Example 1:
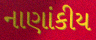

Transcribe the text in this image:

નાણાંકીય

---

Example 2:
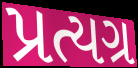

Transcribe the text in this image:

પ્રત્યગ્ર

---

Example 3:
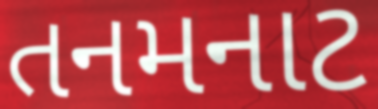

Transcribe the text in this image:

તનમનાટ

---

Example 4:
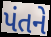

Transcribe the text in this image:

પંતને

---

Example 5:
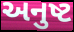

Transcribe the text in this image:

અનુષ્ટ